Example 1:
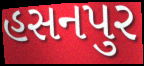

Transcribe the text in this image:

હસનપુર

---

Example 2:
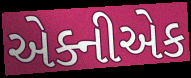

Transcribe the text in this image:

એક્નીએક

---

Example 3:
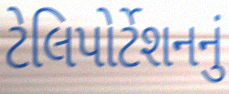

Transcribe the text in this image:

ટેલિપોર્ટેશનનું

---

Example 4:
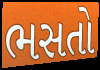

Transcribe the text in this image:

ભસતો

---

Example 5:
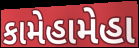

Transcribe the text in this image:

કામેહામેહા